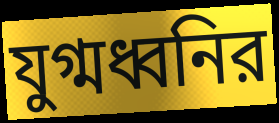
যুগ্মধ্বনির